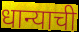
धान्याची